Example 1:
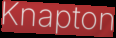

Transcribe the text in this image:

Knapton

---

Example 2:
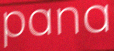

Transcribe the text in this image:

pana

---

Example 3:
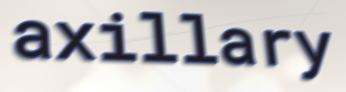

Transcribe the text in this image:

axillary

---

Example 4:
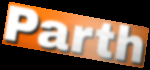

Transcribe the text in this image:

Parth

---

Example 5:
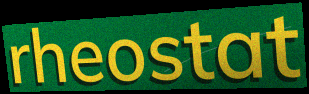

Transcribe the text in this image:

rheostat